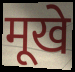
मूखे